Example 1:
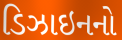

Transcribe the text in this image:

ડિઝાઇનનો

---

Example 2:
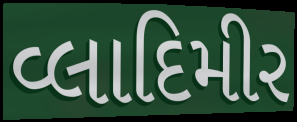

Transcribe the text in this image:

વ્લાદિમીર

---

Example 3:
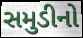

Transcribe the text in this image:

સમુડીનો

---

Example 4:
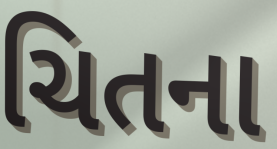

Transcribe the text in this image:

ચિતના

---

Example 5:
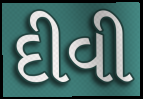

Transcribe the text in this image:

દીવી